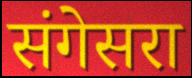
संगेसरा